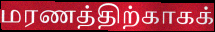
மரணத்திற்காகக்